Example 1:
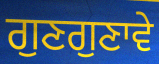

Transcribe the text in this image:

ਗੁਣਗੁਣਾਵੇ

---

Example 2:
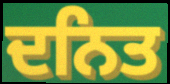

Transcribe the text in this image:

ਦਨਿਤ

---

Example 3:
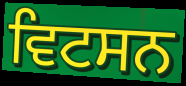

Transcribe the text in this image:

ਵਿਟਸਨ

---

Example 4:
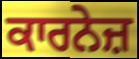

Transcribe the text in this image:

ਕਾਰਨੇਜ਼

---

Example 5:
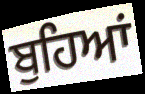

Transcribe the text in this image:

ਬੁਹਿਆਂ